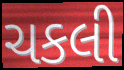
ચકલી